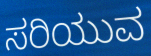
ಸರಿಯುವ